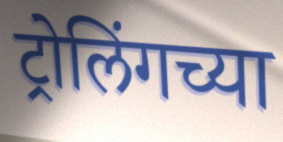
ट्रोलिंगच्या